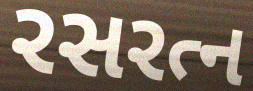
રસરત્ન